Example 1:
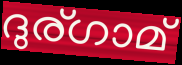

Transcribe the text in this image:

ദുര്ഗാമ്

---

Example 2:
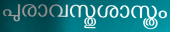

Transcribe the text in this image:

പുരാവസ്തുശാസ്ത്രം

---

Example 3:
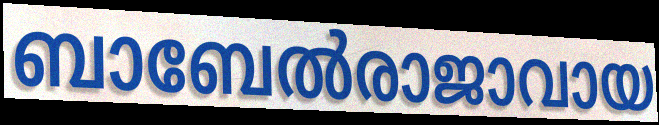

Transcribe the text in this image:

ബാബേൽരാജാവായ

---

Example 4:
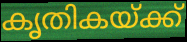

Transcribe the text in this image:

കൃതികയ്ക്ക്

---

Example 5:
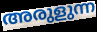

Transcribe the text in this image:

അരുളുന്ന